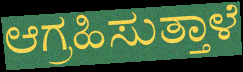
ಆಗ್ರಹಿಸುತ್ತಾಳೆ